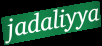
jadaliyya